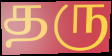
தரு